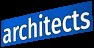
architects